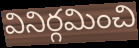
వినిర్గమించి